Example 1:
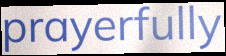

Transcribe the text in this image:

prayerfully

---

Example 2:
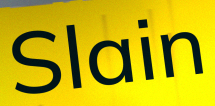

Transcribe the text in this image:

Slain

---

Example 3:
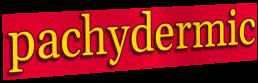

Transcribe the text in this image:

pachydermic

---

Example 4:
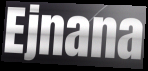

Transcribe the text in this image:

Ejnana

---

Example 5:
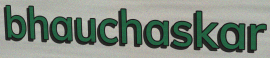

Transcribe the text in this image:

bhauchaskar